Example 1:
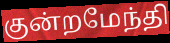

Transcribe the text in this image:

குன்றமேந்தி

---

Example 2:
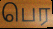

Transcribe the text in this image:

பெர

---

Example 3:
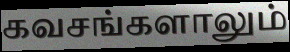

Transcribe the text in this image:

கவசங்களாலும்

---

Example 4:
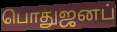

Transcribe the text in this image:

பொதுஜனப்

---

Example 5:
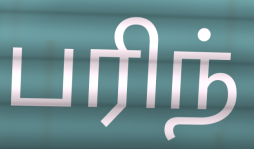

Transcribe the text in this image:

பரிந்